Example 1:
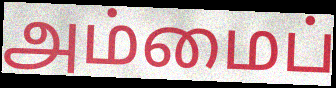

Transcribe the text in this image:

அம்மைப்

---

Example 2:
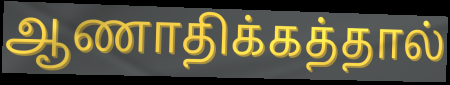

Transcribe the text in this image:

ஆணாதிக்கத்தால்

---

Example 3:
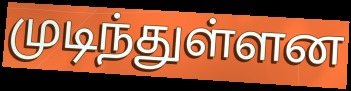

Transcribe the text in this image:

முடிந்துள்ளன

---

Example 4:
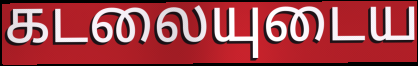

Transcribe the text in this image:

கடலையுடைய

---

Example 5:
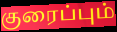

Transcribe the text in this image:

குரைப்பும்